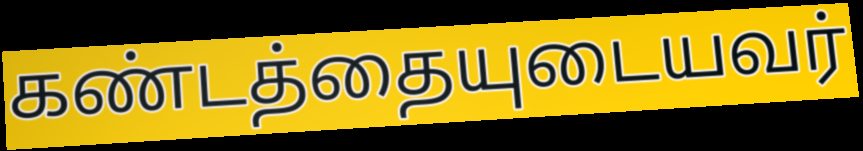
கண்டத்தையுடையவர்